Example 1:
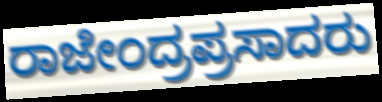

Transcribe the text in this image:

ರಾಜೇಂದ್ರಪ್ರಸಾದರು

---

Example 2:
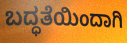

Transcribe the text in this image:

ಬದ್ಧತೆಯಿಂದಾಗಿ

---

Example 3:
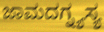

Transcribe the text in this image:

ಜಾಮದಗ್ನ್ಯಸ್ಯ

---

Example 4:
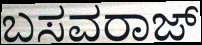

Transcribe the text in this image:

ಬಸವರಾಜ್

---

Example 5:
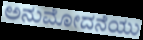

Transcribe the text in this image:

ಅನುಮೋದನೆಯು